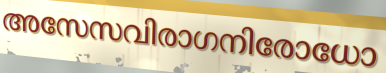
അസേസവിരാഗനിരോധോ